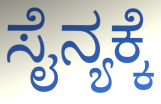
ಸೈನ್ಯಕ್ಕೆ